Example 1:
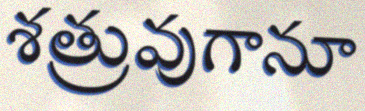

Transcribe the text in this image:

శత్రువుగానూ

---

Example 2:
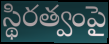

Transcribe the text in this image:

స్థిరత్వంపై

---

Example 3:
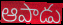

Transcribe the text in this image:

ఆపాడు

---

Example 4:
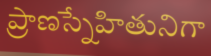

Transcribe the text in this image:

ప్రాణస్నేహితునిగా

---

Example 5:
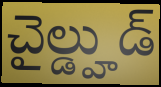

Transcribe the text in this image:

చైల్డ్హుడ్